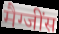
मैग्जींस